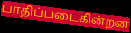
பாதிப்படைகின்றன